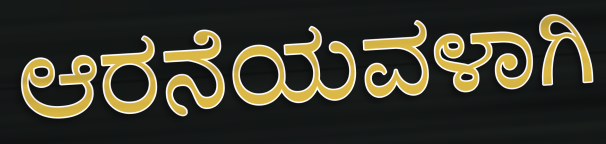
ಆರನೆಯವಳಾಗಿ